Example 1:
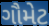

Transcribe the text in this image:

ગૌમેટ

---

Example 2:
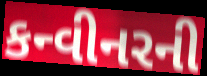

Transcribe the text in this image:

કન્વીનરની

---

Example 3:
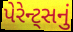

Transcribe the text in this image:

પેરેન્ટ્સનું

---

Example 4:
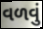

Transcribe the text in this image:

વળવું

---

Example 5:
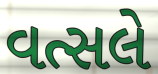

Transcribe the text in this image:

વત્સલે